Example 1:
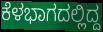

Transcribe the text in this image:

ಕೆಳಭಾಗದಲ್ಲಿದ್ದ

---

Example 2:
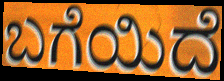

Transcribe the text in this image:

ಬಗೆಯಿದೆ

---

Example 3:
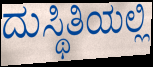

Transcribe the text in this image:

ದುಸ್ಥಿತಿಯಲ್ಲಿ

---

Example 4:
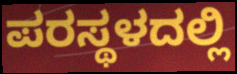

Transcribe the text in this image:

ಪರಸ್ಥಳದಲ್ಲಿ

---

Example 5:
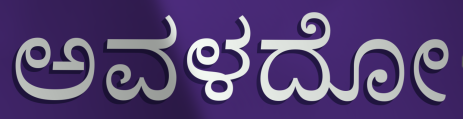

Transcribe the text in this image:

ಅವಳದೋ